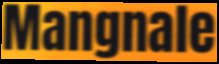
Mangnale